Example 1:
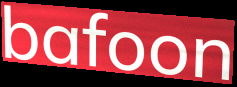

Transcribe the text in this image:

bafoon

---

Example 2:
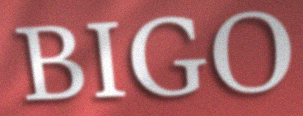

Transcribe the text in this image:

BIGO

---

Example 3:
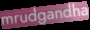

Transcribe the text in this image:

mrudgandha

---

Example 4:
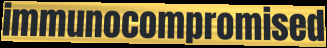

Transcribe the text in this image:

immunocompromised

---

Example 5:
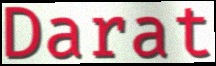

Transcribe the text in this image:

Darat